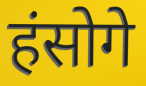
हंसोगे